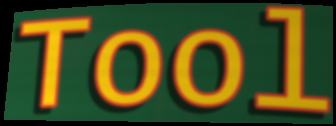
Tool